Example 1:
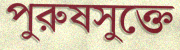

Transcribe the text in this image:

পুরুষসুক্তে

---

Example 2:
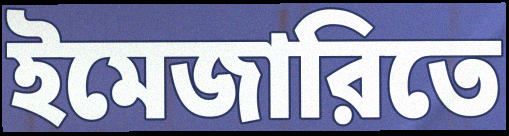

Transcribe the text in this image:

ইমেজারিতে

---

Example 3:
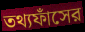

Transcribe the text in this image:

তথ্যফাঁসের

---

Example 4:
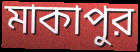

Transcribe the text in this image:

মাকাপুর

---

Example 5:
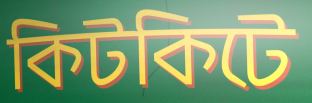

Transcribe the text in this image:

কিটকিটে